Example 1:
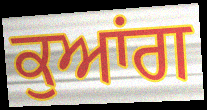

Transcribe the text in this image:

ਕੁਆਂਗ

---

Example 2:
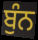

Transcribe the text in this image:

ਬੁੰਨ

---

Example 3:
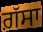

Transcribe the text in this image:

ਗ਼ੱਸਾ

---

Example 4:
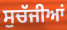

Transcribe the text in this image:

ਸੁਚੱਜੀਆਂ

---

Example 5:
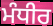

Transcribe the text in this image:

ਮੰਧੀਰ